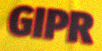
GIPR